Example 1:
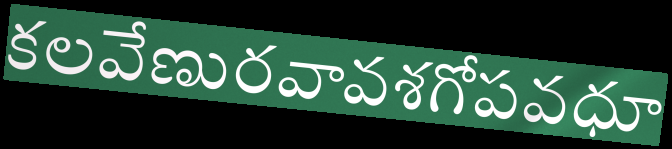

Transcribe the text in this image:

కలవేణురవావశగోపవధూ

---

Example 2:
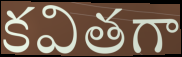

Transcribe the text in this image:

కవితగా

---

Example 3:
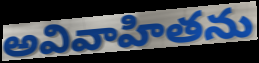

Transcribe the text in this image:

అవివాహితను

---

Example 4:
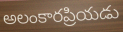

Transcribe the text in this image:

అలంకారప్రియడు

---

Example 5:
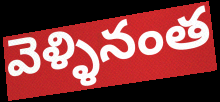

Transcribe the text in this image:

వెళ్ళినంత